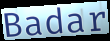
Badar